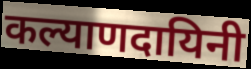
कल्याणदायिनी